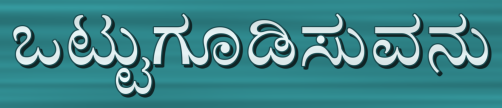
ಒಟ್ಟುಗೂಡಿಸುವನು